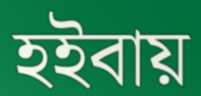
হইবায়